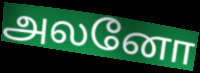
அலனோ